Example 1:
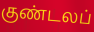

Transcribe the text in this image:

குண்டலப்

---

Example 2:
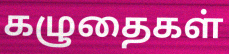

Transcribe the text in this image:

கழுதைகள்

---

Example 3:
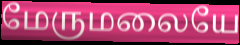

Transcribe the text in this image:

மேருமலையே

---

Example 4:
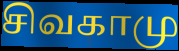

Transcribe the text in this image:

சிவகாமு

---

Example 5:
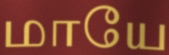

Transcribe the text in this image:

மாயே